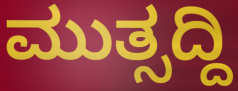
ಮುತ್ಸದ್ದಿ